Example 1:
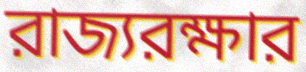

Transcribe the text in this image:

রাজ্যরক্ষার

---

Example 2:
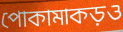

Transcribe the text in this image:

পোকামাকড়ও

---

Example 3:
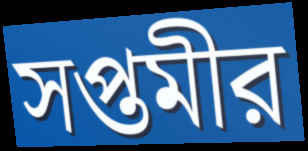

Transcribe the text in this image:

সপ্তমীর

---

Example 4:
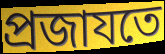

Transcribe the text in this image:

প্রজাযতে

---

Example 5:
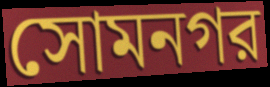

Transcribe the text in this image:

সোমনগর